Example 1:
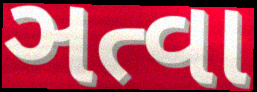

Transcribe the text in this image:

ઞત્વા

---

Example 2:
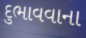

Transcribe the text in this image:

દુભાવવાના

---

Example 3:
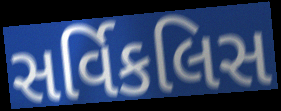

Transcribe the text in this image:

સર્વિકલિસ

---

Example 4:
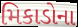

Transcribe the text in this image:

મિકાડોના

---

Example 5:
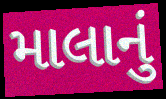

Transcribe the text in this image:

માલાનું